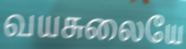
வயசுலையே